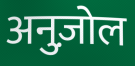
अनुज़ोल